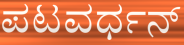
ಪಟವರ್ಧನ್